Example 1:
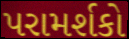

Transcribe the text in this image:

પરામર્શકો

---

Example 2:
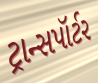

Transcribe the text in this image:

ટ્રાન્સપૉર્ટર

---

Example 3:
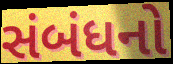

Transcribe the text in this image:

સંબંધનો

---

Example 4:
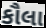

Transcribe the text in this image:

કૌલા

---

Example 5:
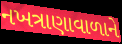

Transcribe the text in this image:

નખત્રાણાવાળાને